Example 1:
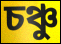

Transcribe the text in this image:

চঞ্চু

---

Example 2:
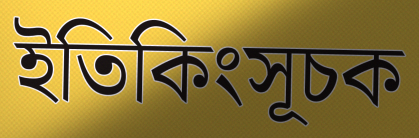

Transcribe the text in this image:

ইতিকিংসূচক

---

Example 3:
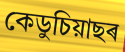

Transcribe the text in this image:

কেডুচিয়াছৰ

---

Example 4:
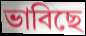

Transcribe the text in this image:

ভাবিছে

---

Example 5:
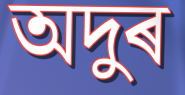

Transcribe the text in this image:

অদুৰ